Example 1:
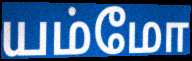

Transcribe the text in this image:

யம்மோ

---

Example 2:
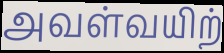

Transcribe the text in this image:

அவள்வயிற்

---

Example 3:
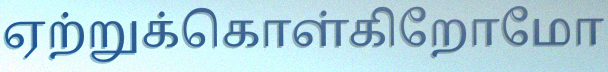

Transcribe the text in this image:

ஏற்றுக்கொள்கிறோமோ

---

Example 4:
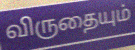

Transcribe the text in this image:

விருதையும்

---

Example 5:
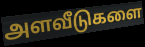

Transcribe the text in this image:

அளவீடுகளை